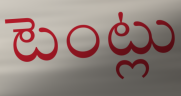
టెంట్లు